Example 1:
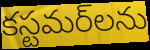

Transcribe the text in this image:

కస్టమర్‌లను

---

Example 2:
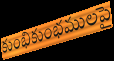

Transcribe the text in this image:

కుంభికుంభములపై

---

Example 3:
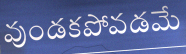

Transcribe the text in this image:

వుండకపోవడమే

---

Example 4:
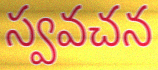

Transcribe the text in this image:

స్వవచన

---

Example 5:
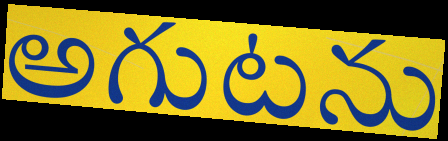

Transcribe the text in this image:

అగుటను